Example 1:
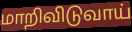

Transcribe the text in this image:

மாறிவிடுவாய்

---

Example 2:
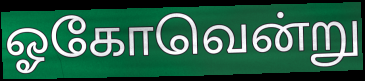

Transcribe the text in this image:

ஓகோவென்று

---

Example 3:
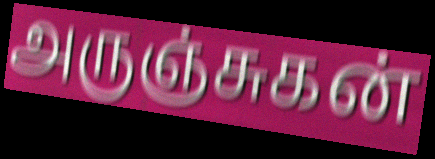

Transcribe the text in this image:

அருஞ்சுகன்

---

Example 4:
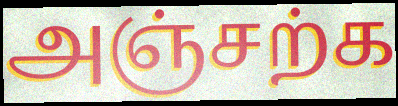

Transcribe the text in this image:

அஞ்சற்க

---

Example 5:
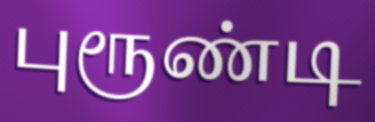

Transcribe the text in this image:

புரூண்டி